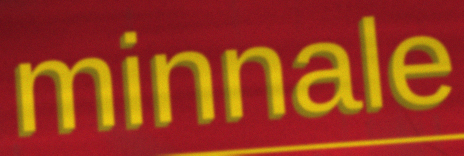
minnale